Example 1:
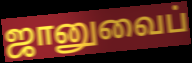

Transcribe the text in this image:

ஜானுவைப்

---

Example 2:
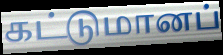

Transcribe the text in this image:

கட்டுமானப்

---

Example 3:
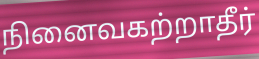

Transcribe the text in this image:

நினைவகற்றாதீர்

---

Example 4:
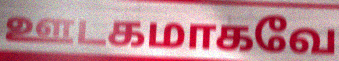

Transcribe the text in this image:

ஊடகமாகவே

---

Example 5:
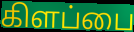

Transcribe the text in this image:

கிளப்பை